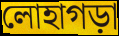
লোহাগড়া